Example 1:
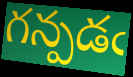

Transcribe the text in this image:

గన్పడఁ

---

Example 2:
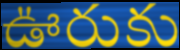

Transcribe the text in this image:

ఊరుకు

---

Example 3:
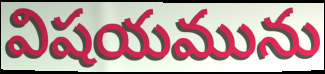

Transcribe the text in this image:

విషయమును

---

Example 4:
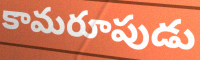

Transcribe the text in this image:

కామరూపుడు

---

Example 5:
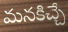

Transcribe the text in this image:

మనకిచ్చే